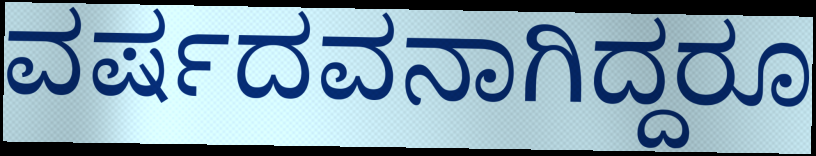
ವರ್ಷದವನಾಗಿದ್ದರೂ